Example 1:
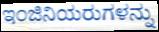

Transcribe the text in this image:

ಇಂಜಿನಿಯರುಗಳನ್ನು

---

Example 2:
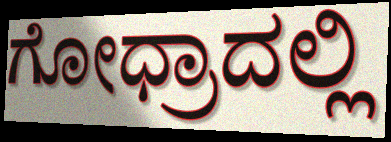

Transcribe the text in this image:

ಗೋಧ್ರಾದಲ್ಲಿ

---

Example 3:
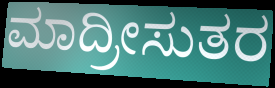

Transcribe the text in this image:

ಮಾದ್ರೀಸುತರ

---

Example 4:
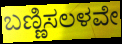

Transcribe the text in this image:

ಬಣ್ಣಿಸಲಳವೇ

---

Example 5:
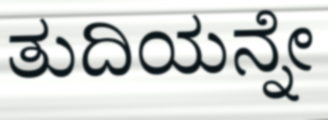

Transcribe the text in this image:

ತುದಿಯನ್ನೇ